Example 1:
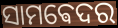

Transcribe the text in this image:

ସାମଵେଦର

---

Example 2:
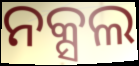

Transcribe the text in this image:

ନକ୍ସଲ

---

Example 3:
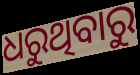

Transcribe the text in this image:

ଧରୁଥିବାରୁ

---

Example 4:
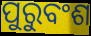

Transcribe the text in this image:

ପୁରୁବଂଶ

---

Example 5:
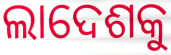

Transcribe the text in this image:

ଲାଦେଶକୁ